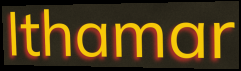
Ithamar